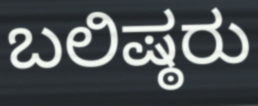
ಬಲಿಷ್ಠರು